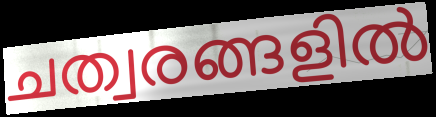
ചത്വരങ്ങളിൽ